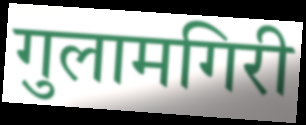
गुलामगिरी